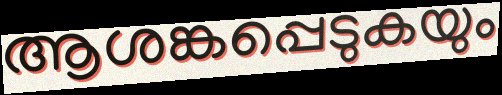
ആശങ്കപ്പെടുകയും